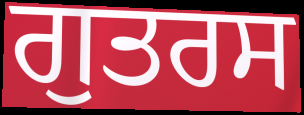
ਗੁਤਰਸ